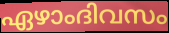
ഏഴാംദിവസം